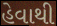
હેવાથી